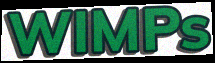
WIMPs